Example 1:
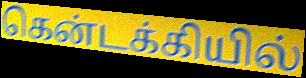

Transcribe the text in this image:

கென்டக்கியில்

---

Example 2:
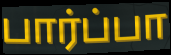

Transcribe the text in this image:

பார்ப்பா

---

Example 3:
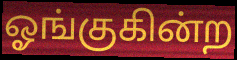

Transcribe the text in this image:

ஓங்குகின்ற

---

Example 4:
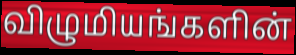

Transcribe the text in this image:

விழுமியங்களின்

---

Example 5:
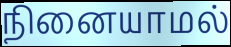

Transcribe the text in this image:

நினையாமல்